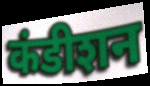
कंडीशन